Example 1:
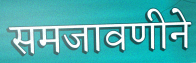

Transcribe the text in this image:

समजावणीने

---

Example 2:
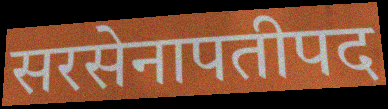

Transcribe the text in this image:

सरसेनापतीपद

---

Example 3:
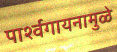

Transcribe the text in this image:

पार्श्वगायनामुळे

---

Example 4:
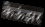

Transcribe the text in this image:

केऊंझर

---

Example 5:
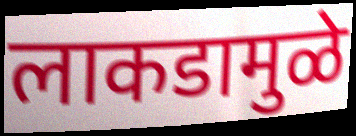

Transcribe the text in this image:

लाकडामुळे